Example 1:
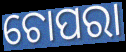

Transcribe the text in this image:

ଚୋପରା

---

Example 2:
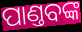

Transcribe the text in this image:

ପାଣ୍ତବଙ୍କ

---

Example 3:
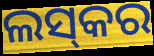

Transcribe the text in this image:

ଲସ୍‌କର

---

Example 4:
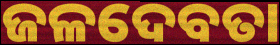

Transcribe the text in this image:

ଜଳଦେବତା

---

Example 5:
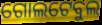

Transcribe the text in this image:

ଗୋଲଟେବୁଲ